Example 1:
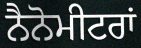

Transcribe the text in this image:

ਨੈਨੋਮੀਟਰਾਂ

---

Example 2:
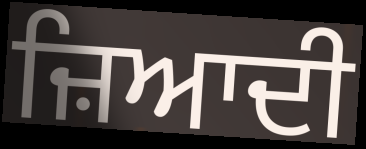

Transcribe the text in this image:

ਜ਼ਿਆਦੀ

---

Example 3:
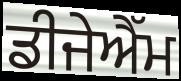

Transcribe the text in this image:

ਡੀਜੇਐੱਮ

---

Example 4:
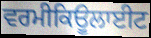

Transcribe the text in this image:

ਵਰਮੀਕਿਊਲਾਈਟ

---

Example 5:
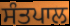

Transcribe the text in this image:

ਸੰਤਪਾਲ